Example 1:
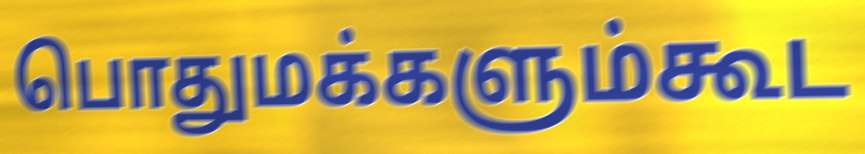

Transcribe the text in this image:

பொதுமக்களும்கூட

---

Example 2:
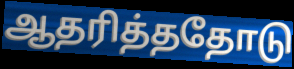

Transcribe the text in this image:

ஆதரித்ததோடு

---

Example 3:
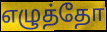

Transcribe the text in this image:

எழுத்தோ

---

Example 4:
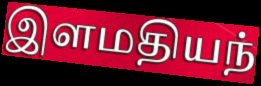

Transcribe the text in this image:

இளமதியந்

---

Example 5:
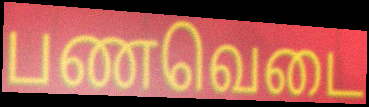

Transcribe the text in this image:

பணவெடை